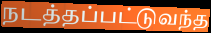
நடத்தப்பட்டுவந்த